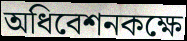
অধিবেশনকক্ষে